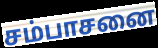
சம்பாசனை